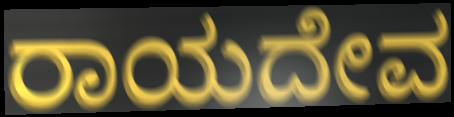
ರಾಯದೇವ